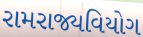
રામરાજ્યવિયોગ